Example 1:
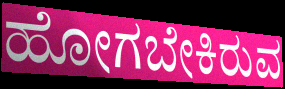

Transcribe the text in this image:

ಹೋಗಬೇಕಿರುವ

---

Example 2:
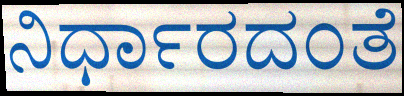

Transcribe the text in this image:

ನಿರ್ಧಾರದಂತೆ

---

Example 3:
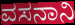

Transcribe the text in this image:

ವಸನಾನಿ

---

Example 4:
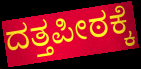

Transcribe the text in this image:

ದತ್ತಪೀಠಕ್ಕೆ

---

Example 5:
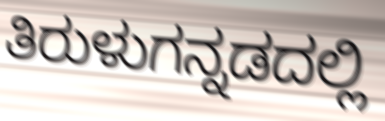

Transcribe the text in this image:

ತಿರುಳುಗನ್ನಡದಲ್ಲಿ